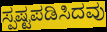
ಸ್ಪಷ್ಟಪಡಿಸಿದವು